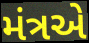
મંત્રએ